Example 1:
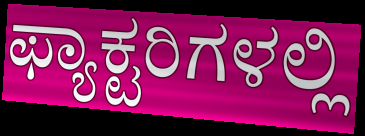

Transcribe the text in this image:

ಫ್ಯಾಕ್ಟರಿಗಳಲ್ಲಿ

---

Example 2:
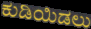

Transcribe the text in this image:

ಕುಡಿಯಿಡಲು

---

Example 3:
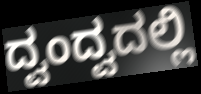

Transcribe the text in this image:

ದ್ವಂದ್ವದಲ್ಲಿ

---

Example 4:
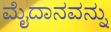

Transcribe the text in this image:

ಮೈದಾನವನ್ನು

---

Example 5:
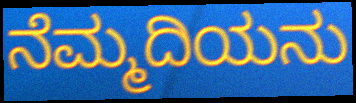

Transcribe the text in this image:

ನೆಮ್ಮದಿಯನು